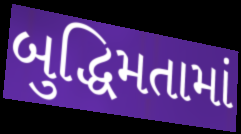
બુદ્ધિમતામાં